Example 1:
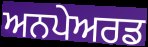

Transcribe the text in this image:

ਅਨਪੇਅਰਡ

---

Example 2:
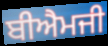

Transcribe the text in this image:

ਬੀਐਮਜੀ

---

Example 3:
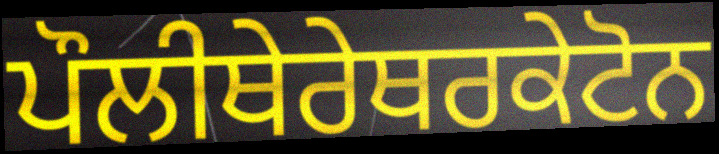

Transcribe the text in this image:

ਪੌਲੀਥੇਰੇਥਰਕੇਟੋਨ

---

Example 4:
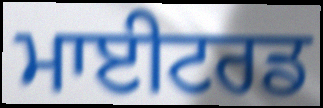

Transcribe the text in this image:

ਮਾਈਟਰਡ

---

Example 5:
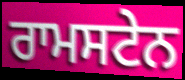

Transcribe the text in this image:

ਰਾਮਸਟੇਨ